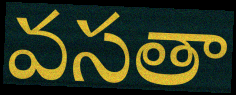
వసతా